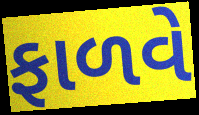
ફાળવે